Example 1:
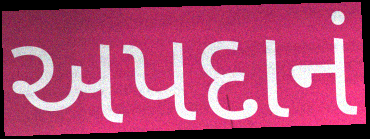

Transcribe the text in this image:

અપદાનં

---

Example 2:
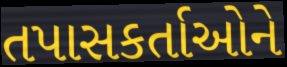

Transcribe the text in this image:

તપાસકર્તાઓને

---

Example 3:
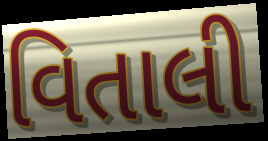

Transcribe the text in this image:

વિતાલી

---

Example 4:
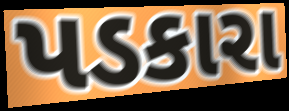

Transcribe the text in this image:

પડકારા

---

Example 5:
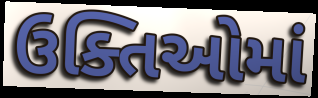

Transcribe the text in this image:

ઉક્તિઓમાં